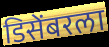
डिसेंबरला